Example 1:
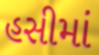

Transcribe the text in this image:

હસીમાં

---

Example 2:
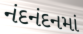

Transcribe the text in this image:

નંદનંદનમાં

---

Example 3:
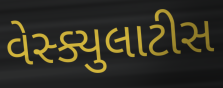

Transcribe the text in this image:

વેસ્ક્યુલાટીસ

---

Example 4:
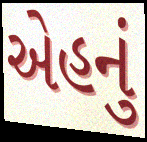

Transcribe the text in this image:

એહનું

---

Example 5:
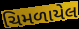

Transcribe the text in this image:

ચિમળાયેલ